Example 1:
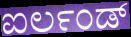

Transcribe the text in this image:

ಐರ್ಲಂಡ್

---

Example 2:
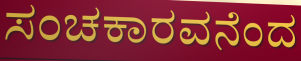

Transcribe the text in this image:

ಸಂಚಕಾರವನೆಂದ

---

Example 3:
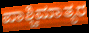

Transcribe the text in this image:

ಪಾಶ್ಚಿಮಾತ್ಯರ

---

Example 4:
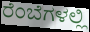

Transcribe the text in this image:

ರೆಂಬೆಗಳಲ್ಲಿ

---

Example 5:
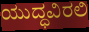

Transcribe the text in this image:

ಯುದ್ಧವಿರಲಿ